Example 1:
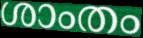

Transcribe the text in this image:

ശാംതം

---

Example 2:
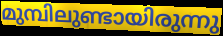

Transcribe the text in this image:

മുമ്പിലുണ്ടായിരുന്നു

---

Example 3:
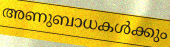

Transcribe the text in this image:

അണുബാധകൾക്കും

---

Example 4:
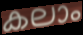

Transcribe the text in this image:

കലാം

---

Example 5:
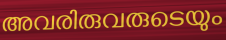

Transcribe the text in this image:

അവരിരുവരുടെയും